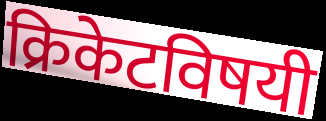
क्रिकेटविषयी